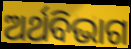
ଅର୍ଥବିଭାଗ